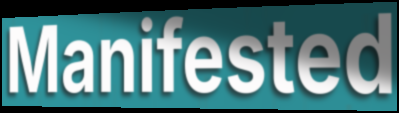
Manifested